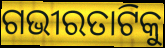
ଗଭୀରତାଟିକୁ